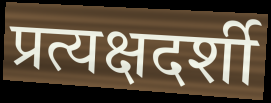
प्रत्यक्षदर्शी